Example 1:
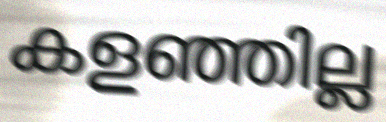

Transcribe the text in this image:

കളഞ്ഞില്ല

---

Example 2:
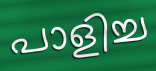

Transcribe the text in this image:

പാളിച്ച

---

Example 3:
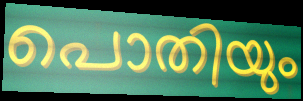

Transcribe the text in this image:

പൊതിയും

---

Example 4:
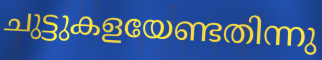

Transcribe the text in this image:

ചുട്ടുകളയേണ്ടതിന്നു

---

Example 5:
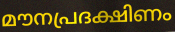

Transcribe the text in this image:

മൗനപ്രദക്ഷിണം